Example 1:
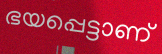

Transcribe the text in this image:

ഭയപ്പെട്ടാണ്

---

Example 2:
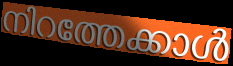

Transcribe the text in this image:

നിറത്തേക്കാൾ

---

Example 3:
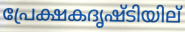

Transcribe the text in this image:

പ്രേക്ഷകദൃഷ്ടിയില്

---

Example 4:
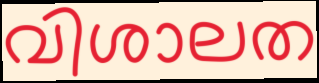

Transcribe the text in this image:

വിശാലത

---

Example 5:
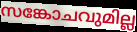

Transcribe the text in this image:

സങ്കോചവുമില്ല